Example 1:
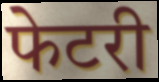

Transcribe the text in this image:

फेटरी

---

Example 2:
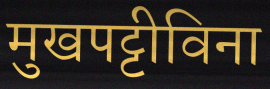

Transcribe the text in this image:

मुखपट्टीविना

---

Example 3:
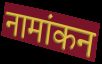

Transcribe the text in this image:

नामांकन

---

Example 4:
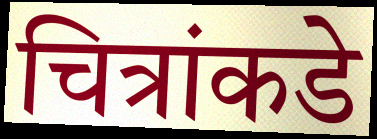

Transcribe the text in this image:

चित्रांकडे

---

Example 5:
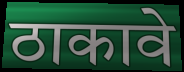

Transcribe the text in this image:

ठाकावे